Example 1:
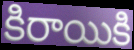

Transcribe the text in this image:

కిరాయికి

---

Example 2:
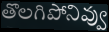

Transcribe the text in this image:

తొలగిపోనివ్వు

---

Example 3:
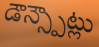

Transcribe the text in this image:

డౌన్స్పౌట్లు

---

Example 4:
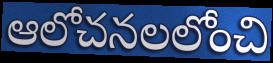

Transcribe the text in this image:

ఆలోచనలలోంచి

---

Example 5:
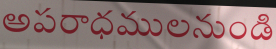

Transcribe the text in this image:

అపరాధములనుండి